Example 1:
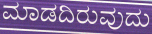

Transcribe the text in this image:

ಮಾಡದಿರುವುದು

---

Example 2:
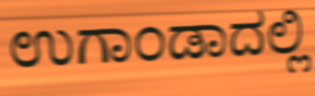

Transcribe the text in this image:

ಉಗಾಂಡಾದಲ್ಲಿ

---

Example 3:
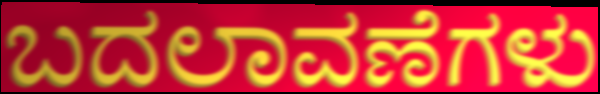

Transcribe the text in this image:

ಬದಲಾವಣೆಗಳು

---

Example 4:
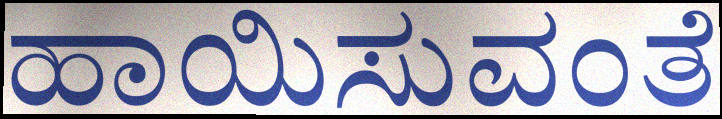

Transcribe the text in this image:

ಹಾಯಿಸುವಂತೆ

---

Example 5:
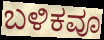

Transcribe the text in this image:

ಬಳಿಕವೂ